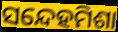
ସନ୍ଦେହମିଶା